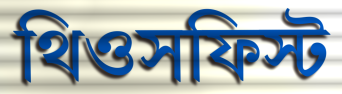
থিওসফিস্ট